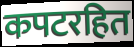
कपटरहित